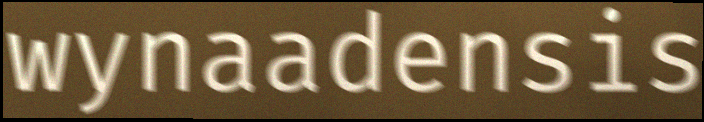
wynaadensis